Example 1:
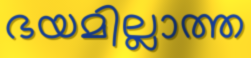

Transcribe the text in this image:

ഭയമില്ലാത്ത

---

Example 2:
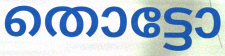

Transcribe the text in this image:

തൊട്ടോ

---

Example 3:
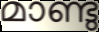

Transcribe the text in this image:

മാണ്ടു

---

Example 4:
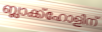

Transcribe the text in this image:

ബ്ലാക്ക്ഹോളിന്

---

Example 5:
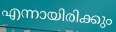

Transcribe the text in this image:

എന്നായിരിക്കും